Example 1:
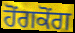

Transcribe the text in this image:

ਹੋਂਗਕੋਂਗ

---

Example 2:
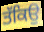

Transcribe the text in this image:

ਤੱਕਿਉ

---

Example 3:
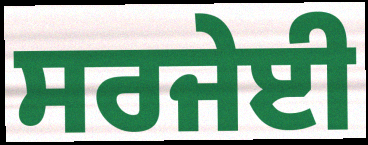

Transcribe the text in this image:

ਸਰਜੇਈ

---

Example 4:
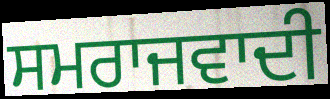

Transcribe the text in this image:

ਸਮਰਾਜਵਾਦੀ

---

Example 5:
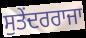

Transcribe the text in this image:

ਸੁਤੇਂਦਰਰਾਜਾ